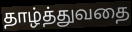
தாழ்த்துவதை